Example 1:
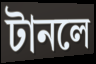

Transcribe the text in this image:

টানলে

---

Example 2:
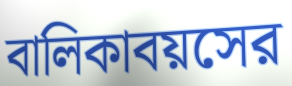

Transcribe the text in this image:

বালিকাবয়সের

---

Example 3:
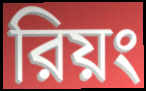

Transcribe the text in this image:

রিয়ং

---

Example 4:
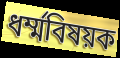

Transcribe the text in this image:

ধর্ম্মবিষয়ক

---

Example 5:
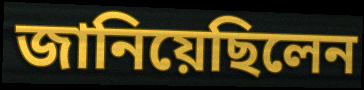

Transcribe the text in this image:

জানিয়েছিলেন